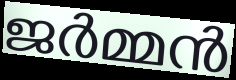
ജർമ്മൻ